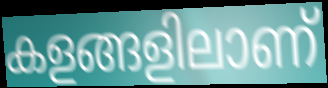
കളങ്ങളിലാണ്